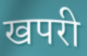
खपरी